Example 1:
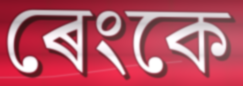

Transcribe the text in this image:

ৰেংকে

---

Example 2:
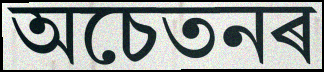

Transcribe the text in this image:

অচেতনৰ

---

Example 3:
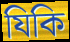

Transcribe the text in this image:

যিকি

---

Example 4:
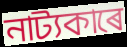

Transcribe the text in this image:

নাট্যকাৰে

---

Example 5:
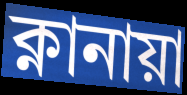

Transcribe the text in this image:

ক্নানায়া